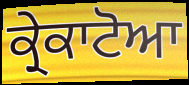
ਕ੍ਰੇਕਾਟੋਆ